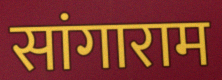
सांगाराम